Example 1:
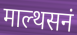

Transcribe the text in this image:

माल्थसनं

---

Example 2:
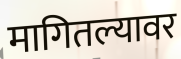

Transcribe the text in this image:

मागितल्यावर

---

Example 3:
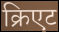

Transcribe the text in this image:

क्रिएट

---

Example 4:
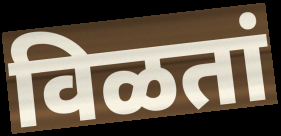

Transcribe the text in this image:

विळतां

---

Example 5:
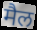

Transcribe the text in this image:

मैल